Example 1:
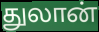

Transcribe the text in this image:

துலான்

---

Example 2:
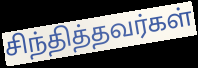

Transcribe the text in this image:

சிந்தித்தவர்கள்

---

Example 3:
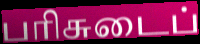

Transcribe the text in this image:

பரிசுடைப்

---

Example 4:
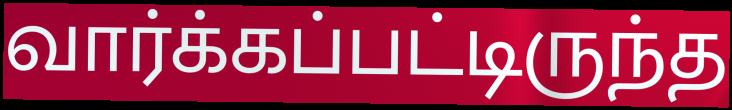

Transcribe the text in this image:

வார்க்கப்பட்டிருந்த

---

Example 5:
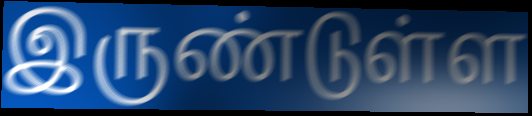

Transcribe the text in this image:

இருண்டுள்ள